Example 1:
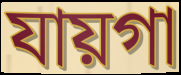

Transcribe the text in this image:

যায়গা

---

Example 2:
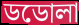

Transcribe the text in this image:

ডডোলা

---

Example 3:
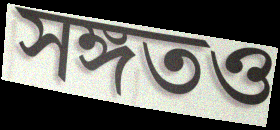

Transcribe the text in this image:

সঙ্গতও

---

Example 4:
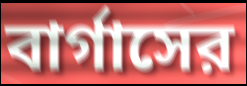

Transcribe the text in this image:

বার্গাসের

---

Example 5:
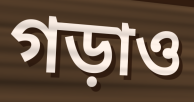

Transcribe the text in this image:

গড়াও